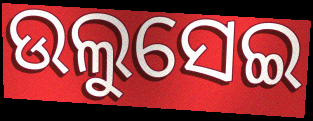
ଉଲୁସେଇ